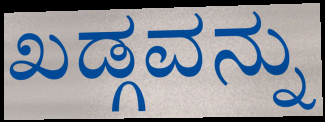
ಖಡ್ಗವನ್ನು